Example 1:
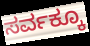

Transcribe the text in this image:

ಸರ್ವಕ್ಕೂ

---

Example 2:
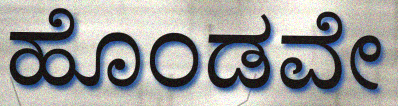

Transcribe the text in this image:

ಹೊಂಡವೇ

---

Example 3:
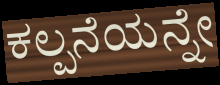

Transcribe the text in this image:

ಕಲ್ಪನೆಯನ್ನೇ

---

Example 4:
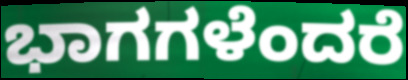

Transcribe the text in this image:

ಭಾಗಗಳೆಂದರೆ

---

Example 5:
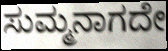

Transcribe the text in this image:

ಸುಮ್ಮನಾಗದೇ